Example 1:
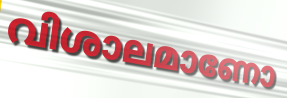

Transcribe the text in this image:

വിശാലമാണോ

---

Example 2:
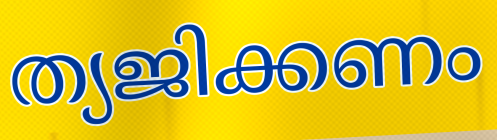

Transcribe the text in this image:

ത്യജിക്കണം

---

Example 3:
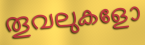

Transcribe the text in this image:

തൂവലുകളോ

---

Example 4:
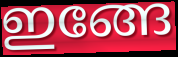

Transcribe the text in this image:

ഇങ്ങേ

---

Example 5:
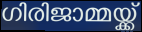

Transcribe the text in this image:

ഗിരിജാമ്മയ്ക്ക്